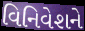
વિનિવેશને